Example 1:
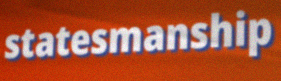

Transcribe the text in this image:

statesmanship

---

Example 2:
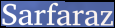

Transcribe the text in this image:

Sarfaraz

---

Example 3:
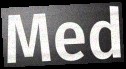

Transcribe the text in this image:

Med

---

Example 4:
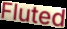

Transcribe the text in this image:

Fluted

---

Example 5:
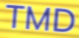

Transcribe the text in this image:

TMD